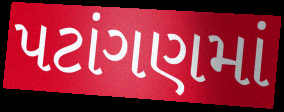
પટાંગણમાં